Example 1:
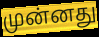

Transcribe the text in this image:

முன்னது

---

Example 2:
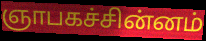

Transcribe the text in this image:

ஞாபகச்சின்னம்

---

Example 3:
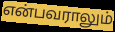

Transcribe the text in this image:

என்பவராலும்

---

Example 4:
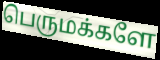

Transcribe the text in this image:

பெருமக்களே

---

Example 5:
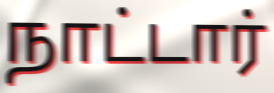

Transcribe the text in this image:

நாட்டார்